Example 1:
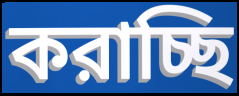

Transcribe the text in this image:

করাচ্ছি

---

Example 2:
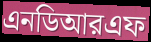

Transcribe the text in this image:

এনডিআরএফ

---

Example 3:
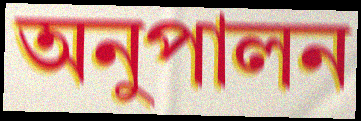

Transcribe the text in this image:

অনুপালন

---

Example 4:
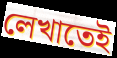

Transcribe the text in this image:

লেখাতেই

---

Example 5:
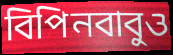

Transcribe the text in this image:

বিপিনবাবুও